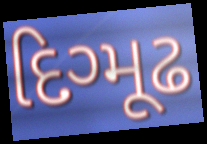
દિગ્મૂઢ